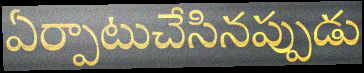
ఏర్పాటుచేసినప్పుడు